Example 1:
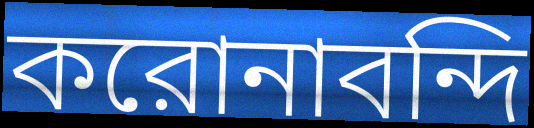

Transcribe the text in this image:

করোনাবন্দি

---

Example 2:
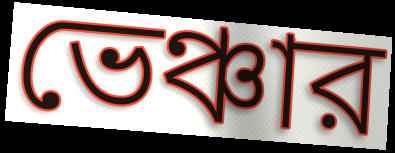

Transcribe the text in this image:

ভেঞ্চার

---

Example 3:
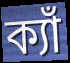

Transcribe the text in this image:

ক্যাঁ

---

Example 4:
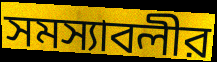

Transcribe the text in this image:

সমস্যাবলীর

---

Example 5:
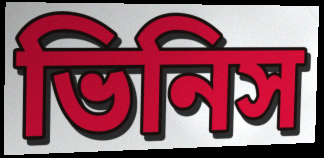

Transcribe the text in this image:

ভিনিস